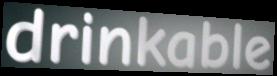
drinkable